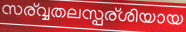
സര്വ്വതലസ്പര്ശിയായ